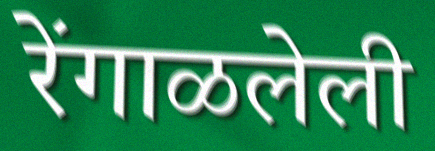
रेंगाळलेली